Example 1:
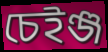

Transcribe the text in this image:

চেইঞ্জ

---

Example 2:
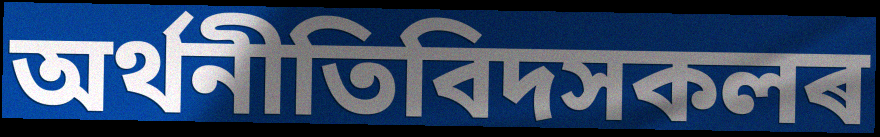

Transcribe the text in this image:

অৰ্থনীতিবিদসকলৰ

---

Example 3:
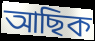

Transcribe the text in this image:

আছিক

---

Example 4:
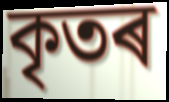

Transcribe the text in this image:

কৃতৰ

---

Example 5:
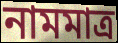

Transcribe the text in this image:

নামমাত্ৰ